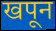
खपून